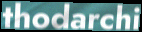
thodarchi